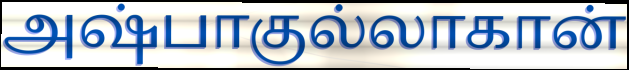
அஷ்பாகுல்லாகான்